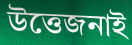
উত্তেজনাই